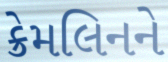
ક્રેમલિનને